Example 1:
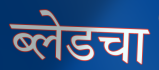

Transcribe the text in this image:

ब्लेडचा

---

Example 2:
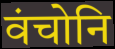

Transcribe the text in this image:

वंचोनि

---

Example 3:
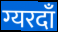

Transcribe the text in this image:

ग्यरदाँ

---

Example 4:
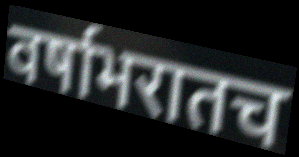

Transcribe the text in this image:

वर्षाभरातच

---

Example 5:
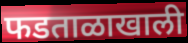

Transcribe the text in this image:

फडताळाखाली